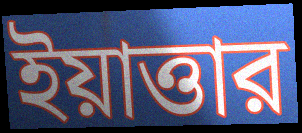
ইয়াত্তার